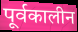
पूर्वकालीन